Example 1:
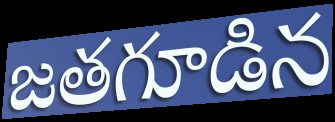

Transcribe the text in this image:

జతగూడిన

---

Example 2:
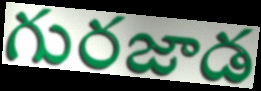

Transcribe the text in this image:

గురజాడ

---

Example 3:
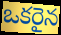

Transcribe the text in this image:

ఒకరైన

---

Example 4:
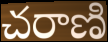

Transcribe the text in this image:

చరాణి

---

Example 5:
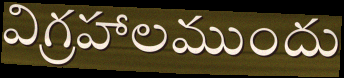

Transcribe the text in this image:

విగ్రహాలముందు